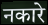
नकारे